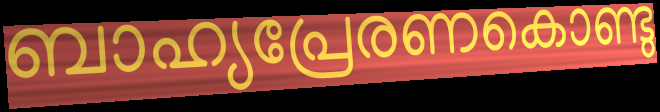
ബാഹ്യപ്രേരണകൊണ്ടു